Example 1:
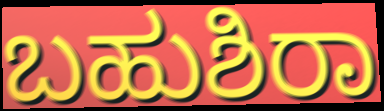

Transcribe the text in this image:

ಬಹುಶಿರಾ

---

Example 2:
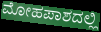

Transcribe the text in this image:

ಮೋಹಪಾಶದಲ್ಲಿ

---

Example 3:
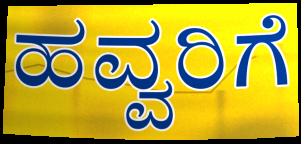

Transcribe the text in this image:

ಹವ್ವರಿಗೆ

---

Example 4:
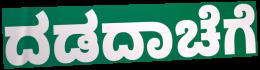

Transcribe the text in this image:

ದಡದಾಚೆಗೆ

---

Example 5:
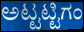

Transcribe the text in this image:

ಅಟ್ಟಟ್ಟಿಗಂ